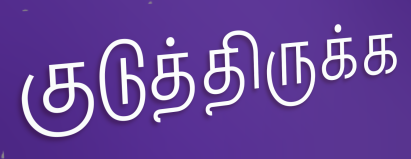
குடுத்திருக்க